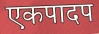
एकपादप